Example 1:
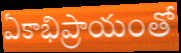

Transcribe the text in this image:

ఏకాభిప్రాయంతో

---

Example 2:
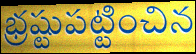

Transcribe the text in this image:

భ్రష్టుపట్టించిన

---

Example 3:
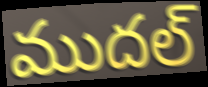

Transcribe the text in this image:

ముదల్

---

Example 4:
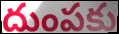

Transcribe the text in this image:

దుంపకు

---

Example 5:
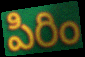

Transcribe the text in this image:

పిరిం